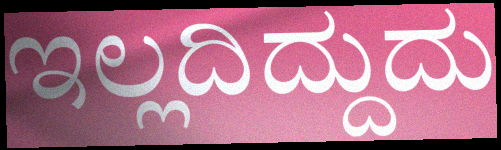
ಇಲ್ಲದಿದ್ದುದು